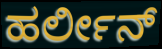
ಹರ್ಲೀನ್